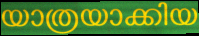
യാത്രയാക്കിയ